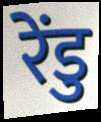
रेंडु